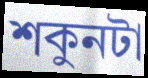
শকুনটা